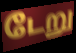
டேறு